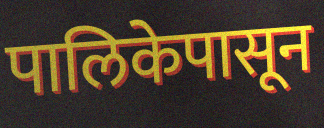
पालिकेपासून